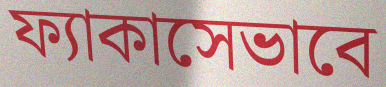
ফ্যাকাসেভাবে